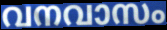
വനവാസം